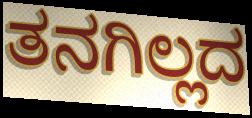
ತನಗಿಲ್ಲದ